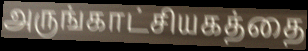
அருங்காட்சியகத்தை